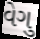
વેગુ